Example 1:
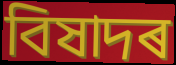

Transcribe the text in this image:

বিষাদৰ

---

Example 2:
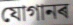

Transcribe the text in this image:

যোগানৰ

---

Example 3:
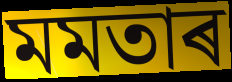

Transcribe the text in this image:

মমতাৰ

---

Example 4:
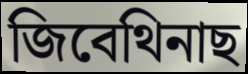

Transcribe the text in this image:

জিবেথিনাছ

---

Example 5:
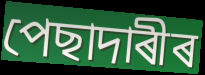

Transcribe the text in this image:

পেছাদাৰীৰ